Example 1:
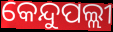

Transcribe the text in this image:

କେନ୍ଦୁପଲ୍ଲୀ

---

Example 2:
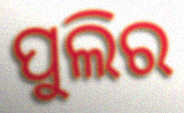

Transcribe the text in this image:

ପୁଲିର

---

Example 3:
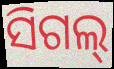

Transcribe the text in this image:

ସିଗଲ୍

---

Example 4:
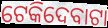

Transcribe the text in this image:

ଟେକିଦେବାଟା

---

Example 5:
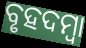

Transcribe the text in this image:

ବୃହଦମ୍ବା